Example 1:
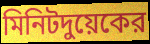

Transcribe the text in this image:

মিনিটদুয়েকের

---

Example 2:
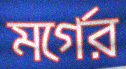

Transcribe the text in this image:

মর্গের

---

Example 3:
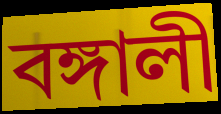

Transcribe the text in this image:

বঙ্গালী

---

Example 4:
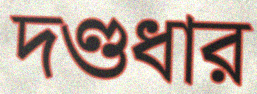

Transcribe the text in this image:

দণ্ডধার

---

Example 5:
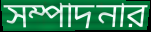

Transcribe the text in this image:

সম্পাদনার